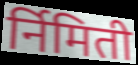
र्निमिती